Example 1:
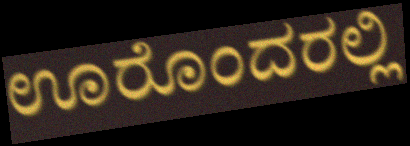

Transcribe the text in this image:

ಊರೊಂದರಲ್ಲಿ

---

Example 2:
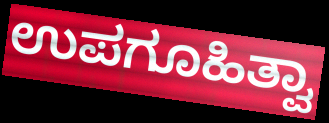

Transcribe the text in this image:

ಉಪಗೂಹಿತ್ವಾ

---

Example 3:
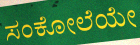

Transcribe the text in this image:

ಸಂಕೋಲೆಯೇ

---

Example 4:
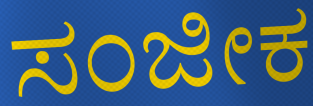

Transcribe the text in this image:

ಸಂಜೀಕ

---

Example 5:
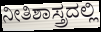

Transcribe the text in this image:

ನೀತಿಶಾಸ್ತ್ರದಲ್ಲಿ